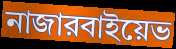
নাজারবাইয়েভ